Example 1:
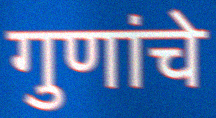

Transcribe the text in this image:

गुणांचे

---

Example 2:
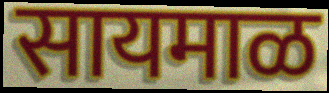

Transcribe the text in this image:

सायमाळ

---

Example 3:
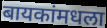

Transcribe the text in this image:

बायकांमधला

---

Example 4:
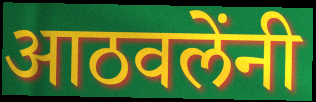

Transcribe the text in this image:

आठवलेंनी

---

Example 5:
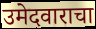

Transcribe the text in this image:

उमेदवाराचा